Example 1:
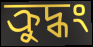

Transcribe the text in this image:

ক্রুদ্ধং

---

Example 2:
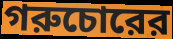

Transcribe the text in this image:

গরুচোরের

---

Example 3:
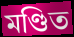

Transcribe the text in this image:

মণ্ডিত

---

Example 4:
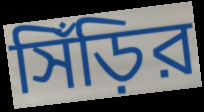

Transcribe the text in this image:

সিঁড়ির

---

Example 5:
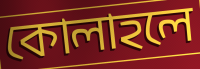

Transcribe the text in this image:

কোলাহলে